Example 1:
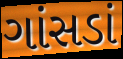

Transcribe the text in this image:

ગાંસડાં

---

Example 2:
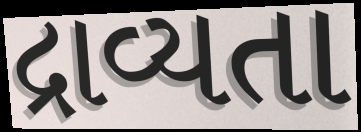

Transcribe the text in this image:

દ્રાવ્યતા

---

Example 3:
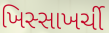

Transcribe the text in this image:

ખિસ્સાખર્ચી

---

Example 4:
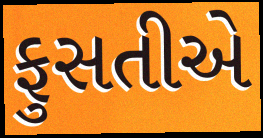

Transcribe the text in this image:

ફુસતીએ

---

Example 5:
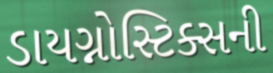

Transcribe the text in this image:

ડાયગ્નોસ્ટિક્સની